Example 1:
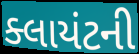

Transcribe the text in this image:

ક્લાયંટની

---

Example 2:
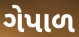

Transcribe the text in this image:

ગેપાળ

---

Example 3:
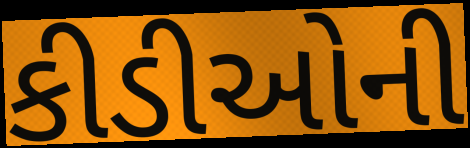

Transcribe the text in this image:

કીડીઓની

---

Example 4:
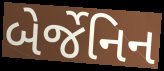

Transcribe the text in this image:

બેર્જેનિન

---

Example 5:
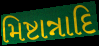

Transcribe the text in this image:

મિષ્ટાન્નાદિ